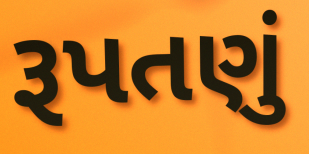
રૂપતણું